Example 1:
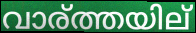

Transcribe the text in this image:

വാര്ത്തയില്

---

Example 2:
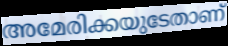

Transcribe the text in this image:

അമേരിക്കയുടേതാണ്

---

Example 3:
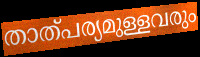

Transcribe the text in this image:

താത്പര്യമുള്ളവരും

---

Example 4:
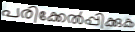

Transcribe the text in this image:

പരിക്കേൽപ്പിക്കുക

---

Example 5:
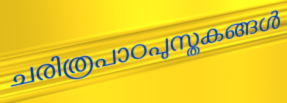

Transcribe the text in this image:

ചരിത്രപാഠപുസ്തകങ്ങൾ